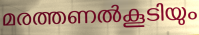
മരത്തണൽകൂടിയും